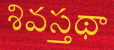
శివస్తథా